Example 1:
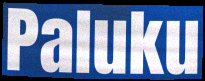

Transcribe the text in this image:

Paluku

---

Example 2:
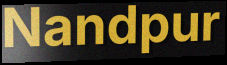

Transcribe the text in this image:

Nandpur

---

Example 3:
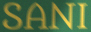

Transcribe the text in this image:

SANI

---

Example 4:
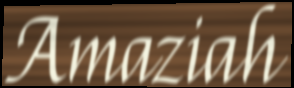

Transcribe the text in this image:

Amaziah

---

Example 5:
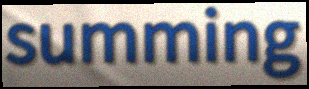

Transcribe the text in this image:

summing